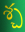
శ్చ